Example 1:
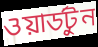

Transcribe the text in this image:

ওয়ার্ডটুন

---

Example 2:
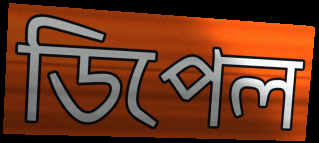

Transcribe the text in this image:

ডিপেল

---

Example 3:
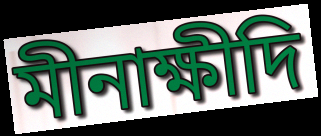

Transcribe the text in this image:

মীনাক্ষীদি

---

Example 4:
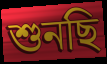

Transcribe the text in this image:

শুনছি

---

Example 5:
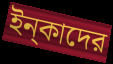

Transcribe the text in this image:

ইন্‌কাদের